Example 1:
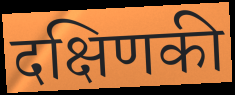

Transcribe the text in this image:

दक्षिणकी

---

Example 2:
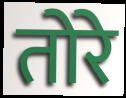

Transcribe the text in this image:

तोरे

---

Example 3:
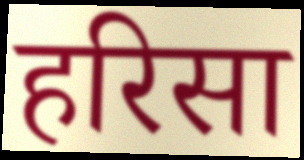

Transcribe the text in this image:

हरिसा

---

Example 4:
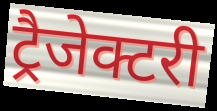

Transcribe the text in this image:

ट्रैजेक्टरी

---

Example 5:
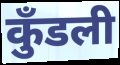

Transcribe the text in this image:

कुँडली